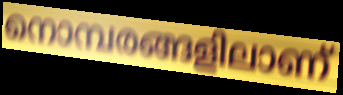
നൊമ്പരങ്ങളിലാണ്